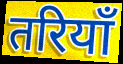
तरियाँ